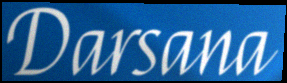
Darsana